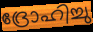
ദ്രോഹിച്ചു